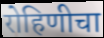
रोहिणीचा